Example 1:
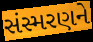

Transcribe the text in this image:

સંસ્મરણને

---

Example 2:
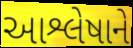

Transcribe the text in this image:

આશ્લેષાને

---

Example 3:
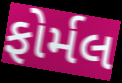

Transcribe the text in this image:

ફોર્મલ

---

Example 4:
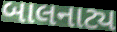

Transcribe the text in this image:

બાલનાટ્ય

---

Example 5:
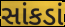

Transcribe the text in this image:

સાંકડાં